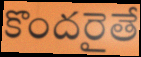
కొందరైతే